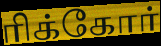
ரிக்கோர்